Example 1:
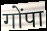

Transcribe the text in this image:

गोंपा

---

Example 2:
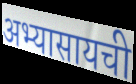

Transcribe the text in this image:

अभ्यासायची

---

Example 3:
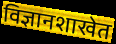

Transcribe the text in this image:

विज्ञानशाखेत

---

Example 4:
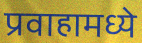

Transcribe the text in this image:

प्रवाहामध्ये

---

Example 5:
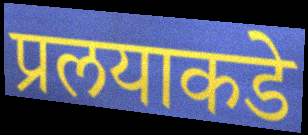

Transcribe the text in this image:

प्रलयाकडे